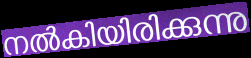
നൽകിയിരിക്കുന്നു